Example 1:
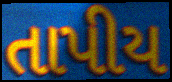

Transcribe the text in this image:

તાપીય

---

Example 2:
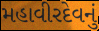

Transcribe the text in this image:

મહાવીરદેવનું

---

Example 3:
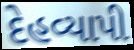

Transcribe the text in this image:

દેહવ્યાપી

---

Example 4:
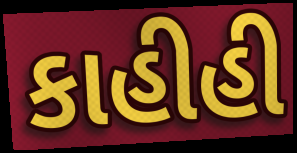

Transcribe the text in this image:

કાહીહી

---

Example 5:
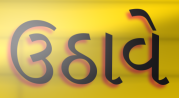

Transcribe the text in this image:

ઉઠાવે